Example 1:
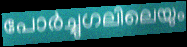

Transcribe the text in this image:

പോർച്ചുഗലിലെയും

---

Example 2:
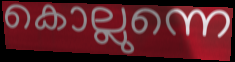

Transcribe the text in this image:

കൊല്ലുന്നെ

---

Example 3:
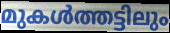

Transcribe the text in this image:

മുകൾത്തട്ടിലും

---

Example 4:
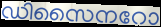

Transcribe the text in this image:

ഡിസൈനറോ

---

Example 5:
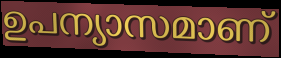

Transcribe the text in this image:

ഉപന്യാസമാണ്